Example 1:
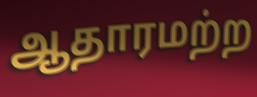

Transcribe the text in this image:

ஆதாரமற்ற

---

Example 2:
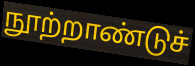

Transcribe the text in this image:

நூற்றாண்டுச்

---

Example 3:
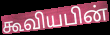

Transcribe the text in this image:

கூவியபின்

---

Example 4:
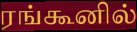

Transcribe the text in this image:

ரங்கூனில்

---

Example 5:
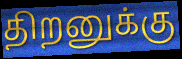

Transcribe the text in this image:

திறனுக்கு